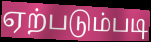
ஏற்படும்படி